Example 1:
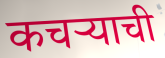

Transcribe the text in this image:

कचऱ्याची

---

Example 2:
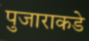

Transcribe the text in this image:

पुजाराकडे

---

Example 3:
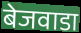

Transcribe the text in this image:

बेजवाडा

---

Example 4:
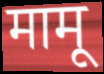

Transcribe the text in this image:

मामू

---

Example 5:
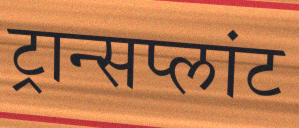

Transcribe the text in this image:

ट्रान्सप्लांट